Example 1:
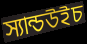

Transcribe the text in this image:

স্যান্ডউইচ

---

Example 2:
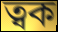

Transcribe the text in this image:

ত্বক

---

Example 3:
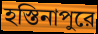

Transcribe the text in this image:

হস্তিনাপুরে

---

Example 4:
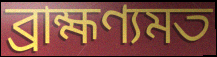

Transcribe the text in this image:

ব্রাহ্মণ্যমত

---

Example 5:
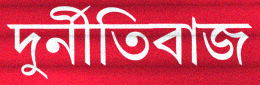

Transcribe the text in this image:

দুর্নীতিবাজ